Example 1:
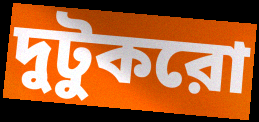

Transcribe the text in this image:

দুটুকরো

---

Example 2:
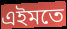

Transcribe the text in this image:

এইমতে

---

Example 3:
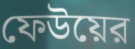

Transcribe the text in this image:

ফেউয়ের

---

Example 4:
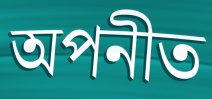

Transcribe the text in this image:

অপনীত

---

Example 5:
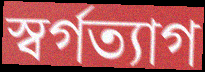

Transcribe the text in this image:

স্বর্গত্যাগ